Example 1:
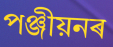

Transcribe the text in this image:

পঞ্জীয়নৰ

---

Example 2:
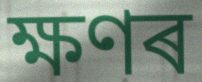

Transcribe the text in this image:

ক্ষণৰ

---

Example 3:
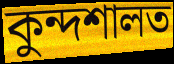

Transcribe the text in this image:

কুন্দশালত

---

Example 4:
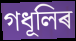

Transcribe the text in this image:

গধূলিৰ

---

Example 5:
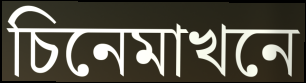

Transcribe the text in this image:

চিনেমাখনে